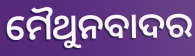
ମୈଥୁନବାଦର